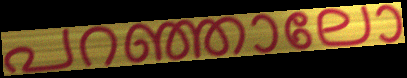
പറഞ്ഞാലോ